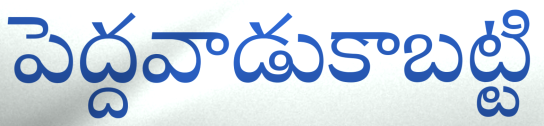
పెద్దవాడుకాబట్టి